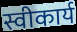
स्‍वीकार्य